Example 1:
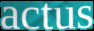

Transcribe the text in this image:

actus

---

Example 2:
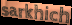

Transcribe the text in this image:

sarkhich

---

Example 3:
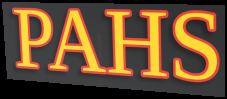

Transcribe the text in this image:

PAHS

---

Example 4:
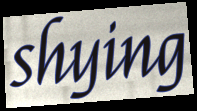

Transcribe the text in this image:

shying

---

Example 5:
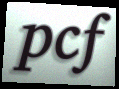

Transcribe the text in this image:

pcf